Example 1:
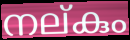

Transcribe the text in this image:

നല്‌കും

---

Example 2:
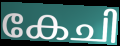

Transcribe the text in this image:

കേചി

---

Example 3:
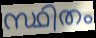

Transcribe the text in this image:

സ്ഥിതം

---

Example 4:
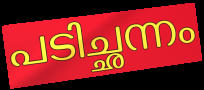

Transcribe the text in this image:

പടിച്ഛന്നം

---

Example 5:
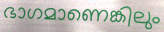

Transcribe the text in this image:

ഭാഗമാണെങ്കിലും